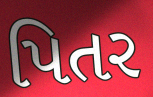
પિતર